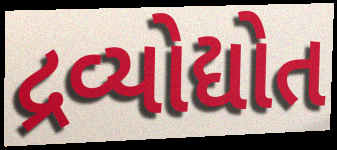
દ્રવ્યોદ્યોત